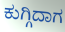
ಕುಗ್ಗಿದಾಗ